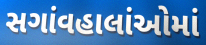
સગાંવહાલાંઓમાં